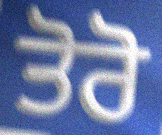
ਤੋਰੋ